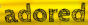
adored